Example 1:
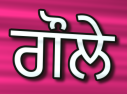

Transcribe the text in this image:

ਗੌਲੇ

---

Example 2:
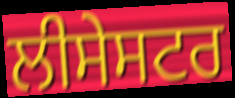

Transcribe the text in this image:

ਲੀਸੇਸਟਰ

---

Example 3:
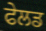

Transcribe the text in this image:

ਫੇਲਡ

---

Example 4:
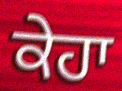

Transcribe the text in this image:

ਕੇਹਾ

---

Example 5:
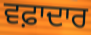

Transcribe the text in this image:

ਵਫ਼ਾਦਾਰ